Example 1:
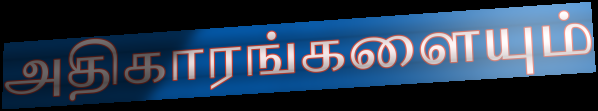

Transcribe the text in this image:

அதிகாரங்களையும்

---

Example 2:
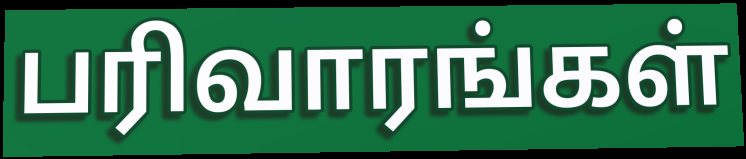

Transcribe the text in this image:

பரிவாரங்கள்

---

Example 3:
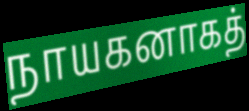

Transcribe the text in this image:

நாயகனாகத்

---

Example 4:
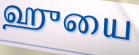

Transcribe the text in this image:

ஹுயை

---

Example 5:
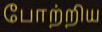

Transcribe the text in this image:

போற்றிய